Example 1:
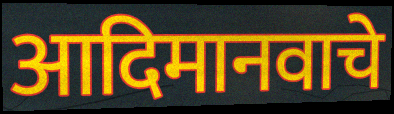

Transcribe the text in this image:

आदिमानवाचे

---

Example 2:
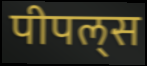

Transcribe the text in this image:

पीपल्स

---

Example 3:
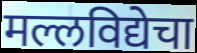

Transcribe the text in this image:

मल्लविद्येचा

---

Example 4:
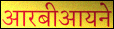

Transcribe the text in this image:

आरबीआयने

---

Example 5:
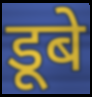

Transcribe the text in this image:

डूबे